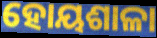
ହୋୟଶାଳା